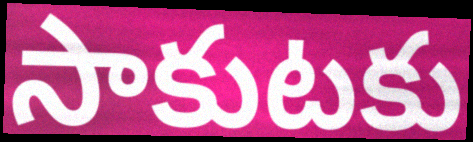
సాకుటకు